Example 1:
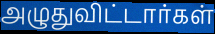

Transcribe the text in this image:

அழுதுவிட்டார்கள்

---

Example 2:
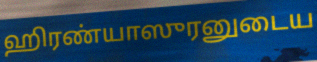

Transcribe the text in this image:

ஹிரண்யாஸுரனுடைய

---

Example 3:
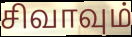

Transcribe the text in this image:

சிவாவும்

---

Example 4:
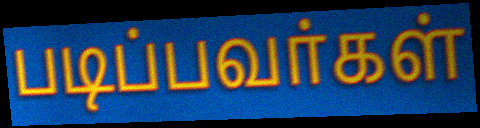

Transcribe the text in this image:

படிப்பவர்கள்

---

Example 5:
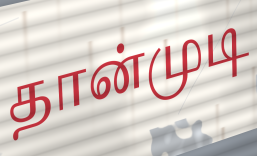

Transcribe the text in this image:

தான்முடி